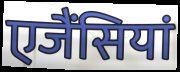
एजैंसियां